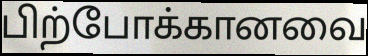
பிற்போக்கானவை